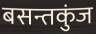
बसन्तकुंज